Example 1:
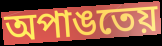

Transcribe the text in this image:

অপাঙতেয়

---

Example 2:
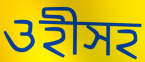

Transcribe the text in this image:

ওহীসহ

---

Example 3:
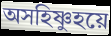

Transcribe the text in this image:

অসহিষ্ণুহয়ে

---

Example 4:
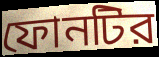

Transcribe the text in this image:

ফোনটির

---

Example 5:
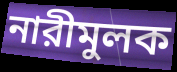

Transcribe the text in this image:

নারীমুলক